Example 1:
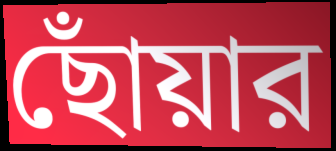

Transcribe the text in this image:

ছোঁয়ার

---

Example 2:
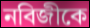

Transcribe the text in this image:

নবিজীকে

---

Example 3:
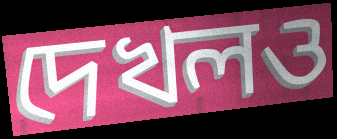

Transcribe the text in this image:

দেখলও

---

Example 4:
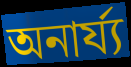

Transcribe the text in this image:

অনার্য্য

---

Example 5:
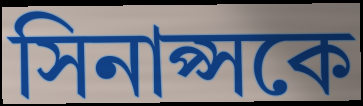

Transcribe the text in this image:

সিনাপ্সকে